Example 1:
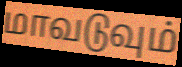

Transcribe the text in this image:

மாவடுவும்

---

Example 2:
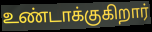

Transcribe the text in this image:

உண்டாக்குகிறார்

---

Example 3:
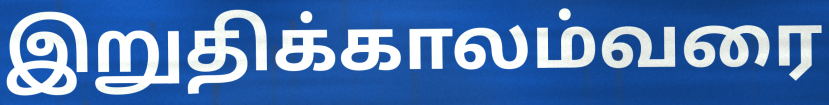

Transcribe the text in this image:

இறுதிக்காலம்வரை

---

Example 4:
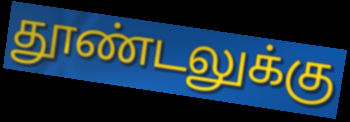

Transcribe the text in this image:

தூண்டலுக்கு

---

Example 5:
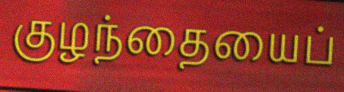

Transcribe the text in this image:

குழந்தையைப்